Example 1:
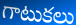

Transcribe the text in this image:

గాటుకలు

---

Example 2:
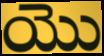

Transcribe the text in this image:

యొ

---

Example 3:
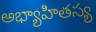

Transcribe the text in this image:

అభ్యాహితస్య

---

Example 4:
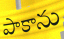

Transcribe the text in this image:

పాకాను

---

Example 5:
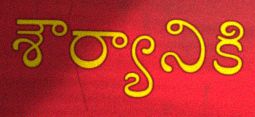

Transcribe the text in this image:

శౌర్యానికి